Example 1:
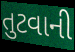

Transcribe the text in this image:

તુટવાની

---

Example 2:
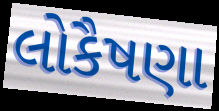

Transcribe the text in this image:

લોકૈષણા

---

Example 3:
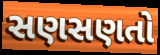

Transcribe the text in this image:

સણસણતો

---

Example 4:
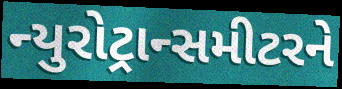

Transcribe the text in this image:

ન્યુરોટ્રાન્સમીટરને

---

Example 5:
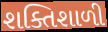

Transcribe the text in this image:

શક્તિશાળી